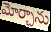
మోర్చాను